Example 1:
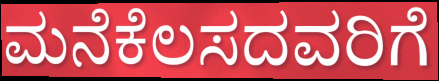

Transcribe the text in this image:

ಮನೆಕೆಲಸದವರಿಗೆ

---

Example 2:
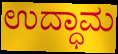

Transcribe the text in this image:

ಉದ್ಧಾಮ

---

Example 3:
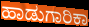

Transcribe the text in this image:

ಹಾಡುಗಾರಿಕಾ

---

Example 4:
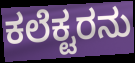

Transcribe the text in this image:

ಕಲೆಕ್ಟರನು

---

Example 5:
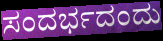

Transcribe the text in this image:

ಸಂದರ್ಭದಂದು